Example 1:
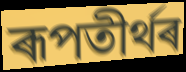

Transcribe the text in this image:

ৰূপতীৰ্থৰ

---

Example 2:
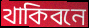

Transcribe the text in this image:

থাকিবনে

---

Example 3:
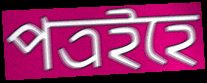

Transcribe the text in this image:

পত্ৰইহে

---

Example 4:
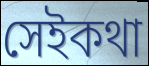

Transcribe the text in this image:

সেইকথা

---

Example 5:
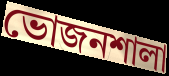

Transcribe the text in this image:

ভোজনশালা